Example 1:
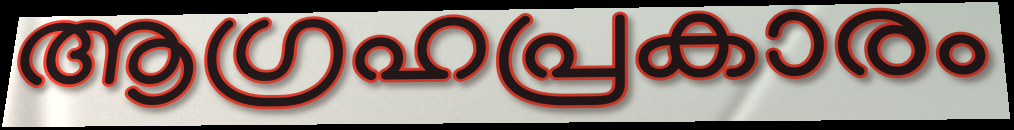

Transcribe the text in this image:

ആഗ്രഹപ്രകാരം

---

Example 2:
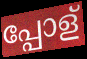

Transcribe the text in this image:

പ്പോള്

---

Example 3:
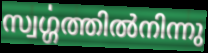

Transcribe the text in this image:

സ്വൎഗ്ഗത്തിൽനിന്നു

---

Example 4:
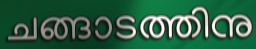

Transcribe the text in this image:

ചങ്ങാടത്തിനു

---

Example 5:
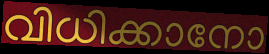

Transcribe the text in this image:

വിധിക്കാനോ